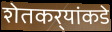
शेतकर्‍यांकडे